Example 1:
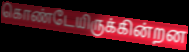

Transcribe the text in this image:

கொண்டேயிருக்கின்றன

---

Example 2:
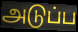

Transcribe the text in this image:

அடுப்ப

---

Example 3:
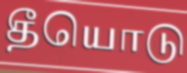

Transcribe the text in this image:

தீயொடு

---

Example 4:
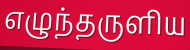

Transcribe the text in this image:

எழுந்தருளிய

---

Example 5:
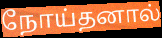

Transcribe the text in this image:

நோய்தனால்